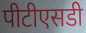
पीटीएसडी